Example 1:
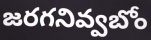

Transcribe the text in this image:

జరగనివ్వబోం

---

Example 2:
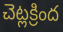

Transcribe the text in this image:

చెట్లక్రింద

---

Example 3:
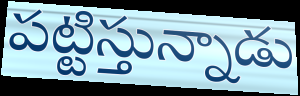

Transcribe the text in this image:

పట్టిస్తున్నాడు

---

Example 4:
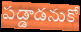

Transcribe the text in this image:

పడ్డాడనుకో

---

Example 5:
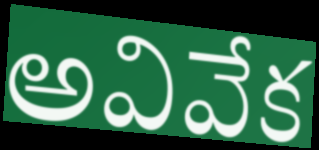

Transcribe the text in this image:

అవివేక